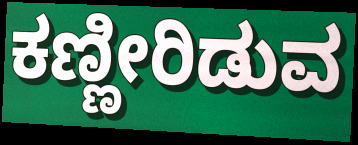
ಕಣ್ಣೀರಿಡುವ